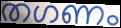
തഗണം